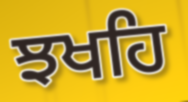
ਝਖਹਿ